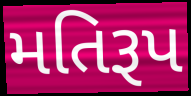
મતિરૂપ